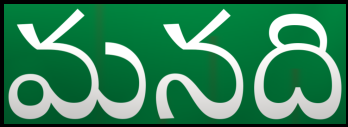
మనది